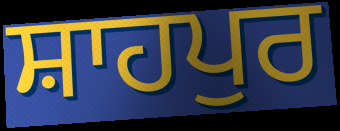
ਸ਼ਾਹਪੁਰ